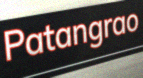
Patangrao